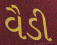
વૈડી